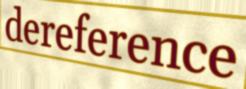
dereference